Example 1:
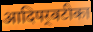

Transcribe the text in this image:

आदिपर्वटीका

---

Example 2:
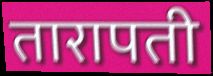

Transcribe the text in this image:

तारापती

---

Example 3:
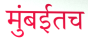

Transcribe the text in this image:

मुंबईतच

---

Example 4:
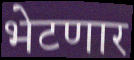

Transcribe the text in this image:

भेटणार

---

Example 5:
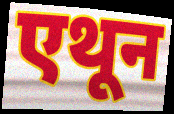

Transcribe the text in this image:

एथून